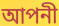
আপনী